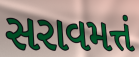
સરાવમત્તં